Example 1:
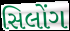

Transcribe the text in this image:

સિલોંગ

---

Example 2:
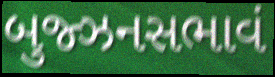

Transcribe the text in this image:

બુજ્ઝનસભાવં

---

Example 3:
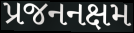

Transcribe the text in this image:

પ્રજનનક્ષમ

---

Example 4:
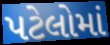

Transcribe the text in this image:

પટેલોમાં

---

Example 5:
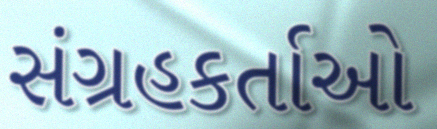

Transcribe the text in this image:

સંગ્રહકર્તાઓ